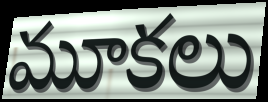
మూకలు